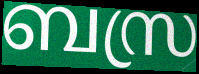
ബസ്ര